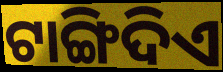
ଟାଙ୍ଗିଦିଏ